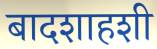
बादशाहशी